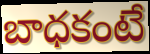
బాధకంటే